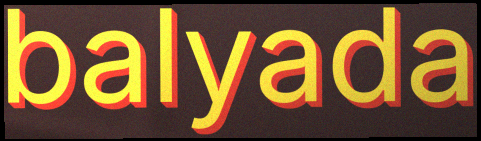
balyada